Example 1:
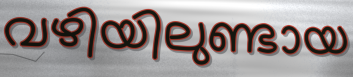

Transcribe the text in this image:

വഴിയിലുണ്ടായ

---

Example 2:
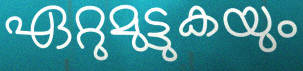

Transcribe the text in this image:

ഏറ്റുമുട്ടുകയും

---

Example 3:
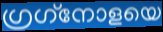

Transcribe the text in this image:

ഗ്രഗ്‌നോളയെ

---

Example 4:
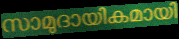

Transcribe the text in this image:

സാമുദായികമായി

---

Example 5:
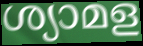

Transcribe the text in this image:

ശ്യാമള